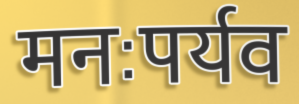
मनःपर्यव